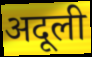
अदूली